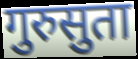
गुरुसुता